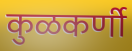
कुळकर्णी